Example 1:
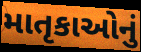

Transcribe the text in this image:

માતૃકાઓનું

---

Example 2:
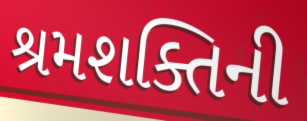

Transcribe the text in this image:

શ્રમશક્તિની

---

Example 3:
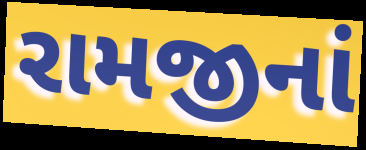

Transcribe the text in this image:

રામજીનાં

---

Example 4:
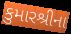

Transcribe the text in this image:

કુમારશ્રીના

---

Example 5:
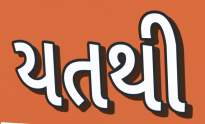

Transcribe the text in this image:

યતથી